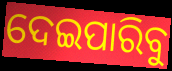
ଦେଇପାରିବୁ